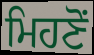
ਮਿਹਣੋਂ